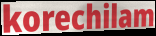
korechilam